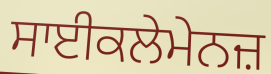
ਸਾਈਕਲੇਮੇਨਜ਼